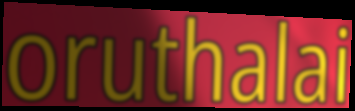
oruthalai